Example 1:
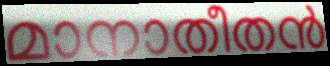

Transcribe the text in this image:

മാനാതീതൻ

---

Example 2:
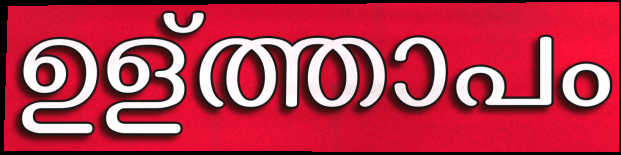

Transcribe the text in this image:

ഉള്ത്താപം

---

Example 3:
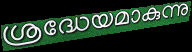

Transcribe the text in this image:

ശ്രദ്ധേയമാകുന്നു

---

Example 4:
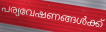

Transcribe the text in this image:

പര്യവേഷണങ്ങൾക്ക്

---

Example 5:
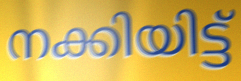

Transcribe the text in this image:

നക്കിയിട്ട്